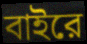
বাইরে